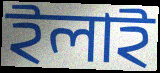
ইলাই